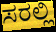
ಸರಲ್ಲಿ